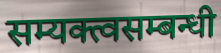
सम्यक्त्वसम्बन्धी